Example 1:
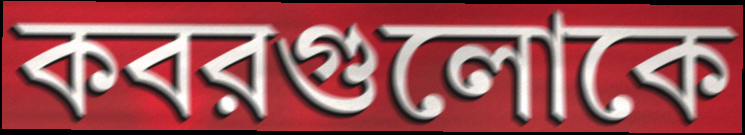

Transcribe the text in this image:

কবরগুলোকে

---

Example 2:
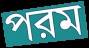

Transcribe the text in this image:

পরম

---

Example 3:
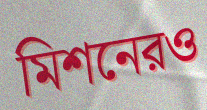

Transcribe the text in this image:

মিশনেরও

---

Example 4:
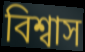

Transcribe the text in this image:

বিশ্বাস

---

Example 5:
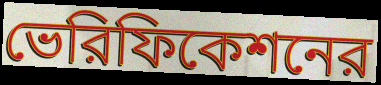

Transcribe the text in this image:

ভেরিফিকেশনের